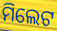
ମିଲେଟ